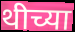
थीच्या